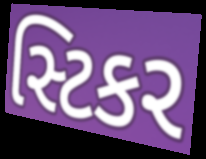
સ્ટિકર